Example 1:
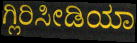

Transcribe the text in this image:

ಗ್ಲಿರಿಸೀಡಿಯಾ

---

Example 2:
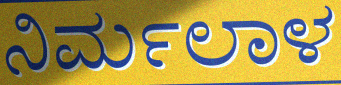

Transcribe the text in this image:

ನಿರ್ಮಲಾಳ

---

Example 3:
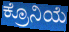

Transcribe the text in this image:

ಕ್ರೊನಿಯೆ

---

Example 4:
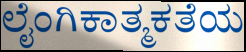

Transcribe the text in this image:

ಲೈಂಗಿಕಾತ್ಮಕತೆಯ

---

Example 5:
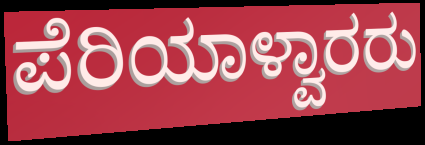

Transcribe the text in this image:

ಪೆರಿಯಾಳ್ವಾರರು